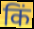
किं